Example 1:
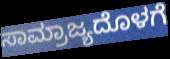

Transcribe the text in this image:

ಸಾಮ್ರಾಜ್ಯದೊಳಗೆ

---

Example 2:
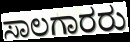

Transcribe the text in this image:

ಸಾಲಗಾರರು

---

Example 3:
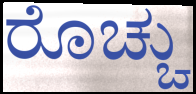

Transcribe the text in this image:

ರೊಚ್ಚು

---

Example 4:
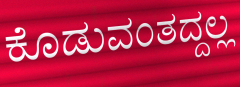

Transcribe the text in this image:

ಕೊಡುವಂತದ್ದಲ್ಲ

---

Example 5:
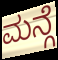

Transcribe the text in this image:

ಮನ್ಗೆ